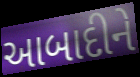
આબાદીને